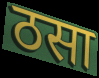
ठसा